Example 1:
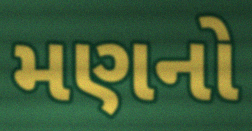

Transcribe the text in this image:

મણનો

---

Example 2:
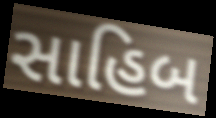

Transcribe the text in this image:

સાહિબ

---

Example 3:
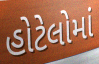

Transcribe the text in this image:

હોટેલોમાં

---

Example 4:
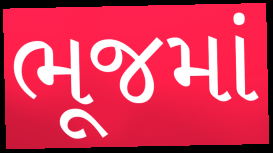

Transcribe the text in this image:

ભૂજમાં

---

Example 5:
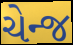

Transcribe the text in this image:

ચેન્જ